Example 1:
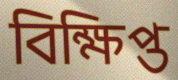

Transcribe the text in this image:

বিক্ষিপ্ত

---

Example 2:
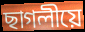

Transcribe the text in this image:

ছাগলীয়ে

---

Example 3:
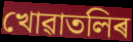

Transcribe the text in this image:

খোৱাতলিৰ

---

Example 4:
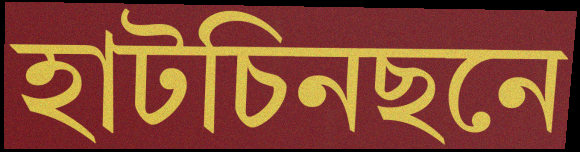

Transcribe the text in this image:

হাটচিনছনে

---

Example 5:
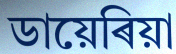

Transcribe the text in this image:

ডায়েৰিয়া